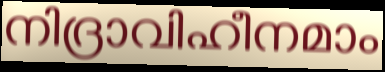
നിദ്രാവിഹീനമാം